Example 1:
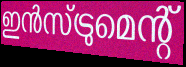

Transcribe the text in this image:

ഇൻസ്ട്രുമെന്റ്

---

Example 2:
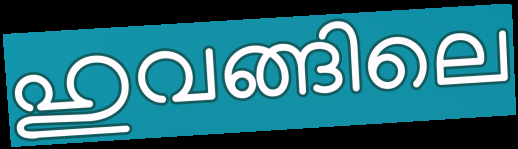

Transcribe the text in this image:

ഹുവങ്ങിലെ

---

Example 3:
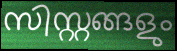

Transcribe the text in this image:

സിസ്റ്റങ്ങളും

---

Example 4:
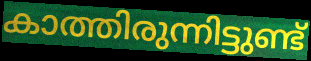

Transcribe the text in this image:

കാത്തിരുന്നിട്ടുണ്ട്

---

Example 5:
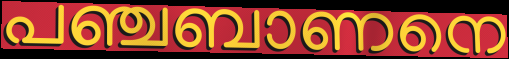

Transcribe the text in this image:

പഞ്ചബാണനെ